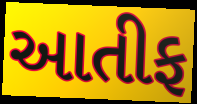
આતીફ